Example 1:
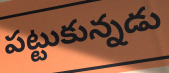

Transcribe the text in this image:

పట్టుకున్నడు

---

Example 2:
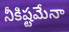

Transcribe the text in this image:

నీకిష్టమేనా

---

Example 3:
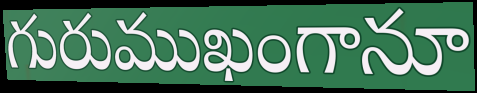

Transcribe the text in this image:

గురుముఖంగానూ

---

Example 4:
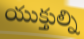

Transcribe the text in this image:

యుక్తుల్ని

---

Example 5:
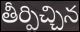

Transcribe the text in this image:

తీర్పిచ్చిన